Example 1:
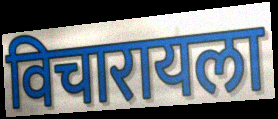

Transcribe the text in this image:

विचारायला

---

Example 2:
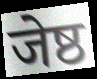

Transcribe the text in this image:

जेष्ठ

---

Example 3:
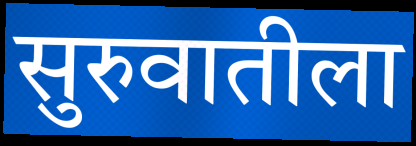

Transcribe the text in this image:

सुरुवातीला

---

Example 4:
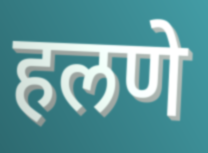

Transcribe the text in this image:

हलणे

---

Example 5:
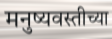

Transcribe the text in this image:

मनुष्यवस्तीच्या